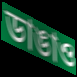
ডাঙাও